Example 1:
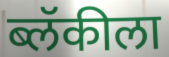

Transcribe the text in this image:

ब्लॅकीला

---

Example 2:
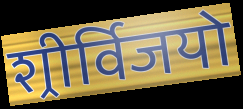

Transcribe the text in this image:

श्रीर्विजयो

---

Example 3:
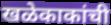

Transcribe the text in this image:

खळेकाकांची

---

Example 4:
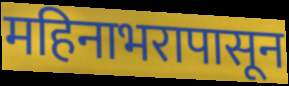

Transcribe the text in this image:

महिनाभरापासून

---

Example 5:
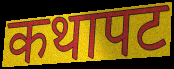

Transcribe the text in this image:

कथापट